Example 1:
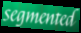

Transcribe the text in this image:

segmented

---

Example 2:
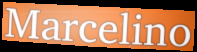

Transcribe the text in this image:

Marcelino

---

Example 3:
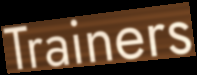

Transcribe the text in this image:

Trainers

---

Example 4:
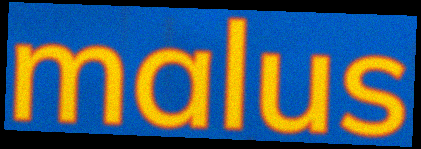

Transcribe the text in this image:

malus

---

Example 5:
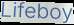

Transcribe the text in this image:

Lifeboy